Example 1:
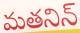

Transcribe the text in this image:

మతనిన్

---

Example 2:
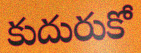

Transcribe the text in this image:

కుదురుకో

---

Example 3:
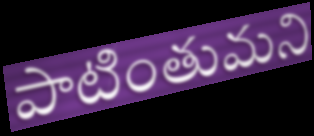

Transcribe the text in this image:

పాటింతుమని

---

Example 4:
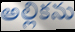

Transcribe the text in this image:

అల్లికను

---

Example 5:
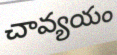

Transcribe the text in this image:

చావ్యయం